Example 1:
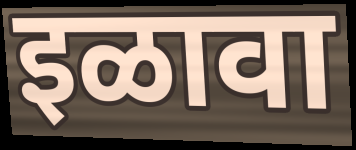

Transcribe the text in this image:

इळावा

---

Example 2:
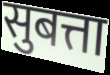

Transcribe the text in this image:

सुबत्ता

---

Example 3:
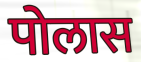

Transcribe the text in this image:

पोलास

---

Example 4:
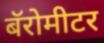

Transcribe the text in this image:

बॅरोमीटर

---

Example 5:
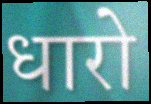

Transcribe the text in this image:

धारो